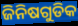
ଜିନିଷଗୁଡିକ